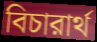
বিচারার্থ